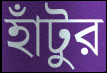
হাঁটুর